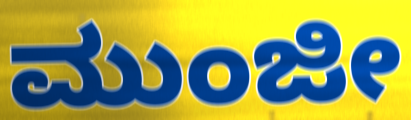
ಮುಂಜೀ